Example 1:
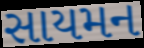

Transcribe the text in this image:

સાયમન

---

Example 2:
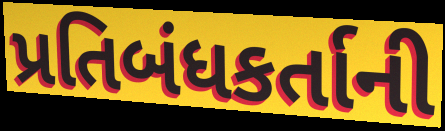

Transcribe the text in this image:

પ્રતિબંધકર્તાની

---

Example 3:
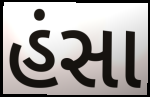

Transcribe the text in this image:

હંસા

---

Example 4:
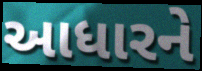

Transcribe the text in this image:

આધારને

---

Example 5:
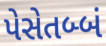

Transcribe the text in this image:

પેસેતબ્બં